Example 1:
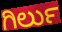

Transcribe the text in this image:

ಗಿರ್ಲು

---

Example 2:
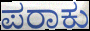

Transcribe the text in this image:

ಪರಾಕು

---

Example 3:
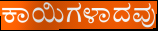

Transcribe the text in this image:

ಕಾಯಿಗಳಾದವು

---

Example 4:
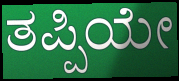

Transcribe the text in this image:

ತಪ್ಪಿಯೇ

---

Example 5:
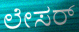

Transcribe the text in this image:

ಲೇಸರ್